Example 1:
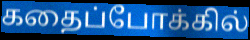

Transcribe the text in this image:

கதைப்போக்கில்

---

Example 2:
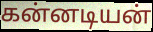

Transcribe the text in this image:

கன்னடியன்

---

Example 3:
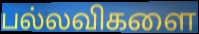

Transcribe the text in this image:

பல்லவிகளை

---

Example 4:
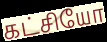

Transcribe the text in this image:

கட்சியோ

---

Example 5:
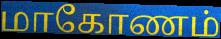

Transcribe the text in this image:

மாகோணம்